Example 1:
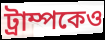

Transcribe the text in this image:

ট্রাম্পকেও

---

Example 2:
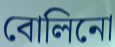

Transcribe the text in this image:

বোলিনো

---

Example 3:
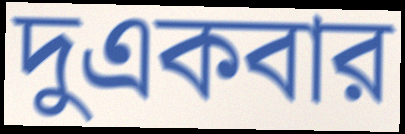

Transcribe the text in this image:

দুএকবার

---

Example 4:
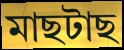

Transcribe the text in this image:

মাছটাছ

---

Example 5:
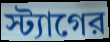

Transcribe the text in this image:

স্ট্যাগের